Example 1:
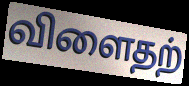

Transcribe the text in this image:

விளைதற்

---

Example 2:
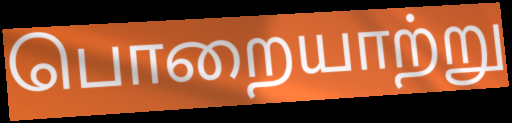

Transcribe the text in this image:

பொறையாற்று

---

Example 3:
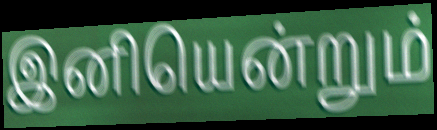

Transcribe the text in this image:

இனியென்றும்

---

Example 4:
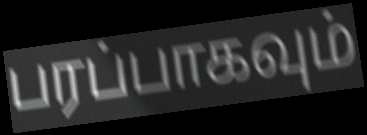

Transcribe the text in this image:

பரப்பாகவும்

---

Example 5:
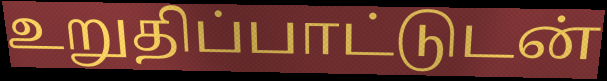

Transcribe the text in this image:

உறுதிப்பாட்டுடன்